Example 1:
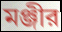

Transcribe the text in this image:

মঞ্জীর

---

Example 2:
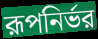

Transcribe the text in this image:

রূপনির্ভর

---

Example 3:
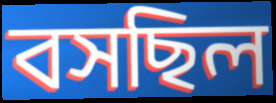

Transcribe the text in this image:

বসছিল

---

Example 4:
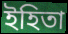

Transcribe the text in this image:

ইহিতা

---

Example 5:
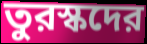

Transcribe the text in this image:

তুরস্কদের